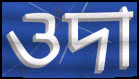
ওদা